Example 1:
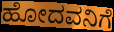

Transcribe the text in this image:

ಹೋದವನಿಗೆ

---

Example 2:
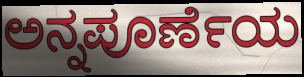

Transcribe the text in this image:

ಅನ್ನಪೂರ್ಣೆಯ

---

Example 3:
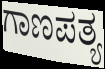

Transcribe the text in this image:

ಗಾಣಪತ್ಯ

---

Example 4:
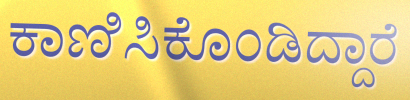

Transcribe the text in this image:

ಕಾಣಿಸಿಕೊಂಡಿದ್ದಾರೆ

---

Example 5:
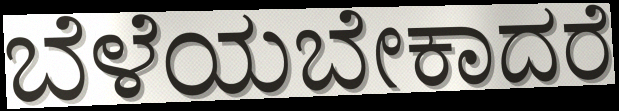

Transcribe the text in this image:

ಬೆಳೆಯಬೇಕಾದರೆ